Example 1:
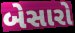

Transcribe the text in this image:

બેસારો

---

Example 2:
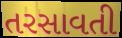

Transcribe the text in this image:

તરસાવતી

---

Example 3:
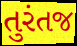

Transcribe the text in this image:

તુરંતજ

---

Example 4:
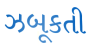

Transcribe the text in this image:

ઝબૂકતી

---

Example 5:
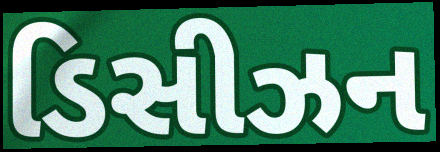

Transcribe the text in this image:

ડિસીઝન